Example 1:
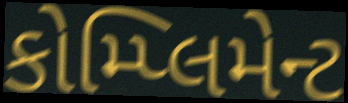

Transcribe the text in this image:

કોમ્પ્લિમેન્ટ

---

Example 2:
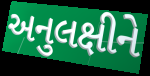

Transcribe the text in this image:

અનુલક્ષીને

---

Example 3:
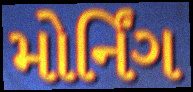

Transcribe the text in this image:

મોર્નિંગ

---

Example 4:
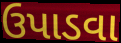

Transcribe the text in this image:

ઉપાડવા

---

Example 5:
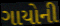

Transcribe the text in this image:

ગાયોની